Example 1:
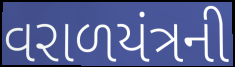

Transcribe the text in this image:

વરાળયંત્રની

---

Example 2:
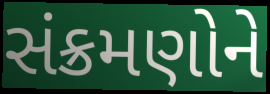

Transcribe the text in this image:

સંક્રમણોને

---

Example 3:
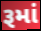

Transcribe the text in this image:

રૂમાં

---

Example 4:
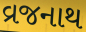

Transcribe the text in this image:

વ્રજનાથ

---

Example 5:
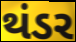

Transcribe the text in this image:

થંડર